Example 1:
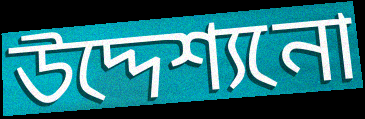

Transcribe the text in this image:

উদ্দেশ্যনো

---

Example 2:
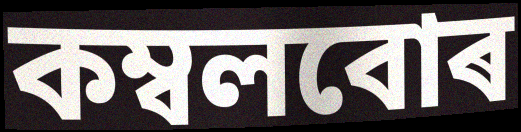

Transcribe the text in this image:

কম্বলবোৰ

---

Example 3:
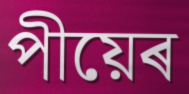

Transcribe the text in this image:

পীয়েৰ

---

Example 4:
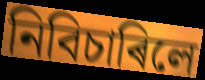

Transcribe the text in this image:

নিবিচাৰিলে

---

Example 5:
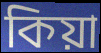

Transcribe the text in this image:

কিয়া